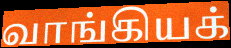
வாங்கியக்